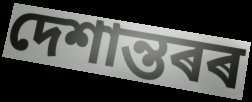
দেশান্তৰৰ